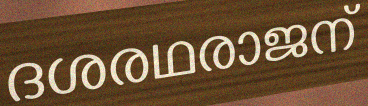
ദശരഥരാജന്